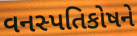
વનસ્પતિકોષને